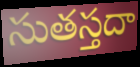
సుతస్తదా